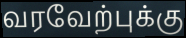
வரவேற்புக்கு